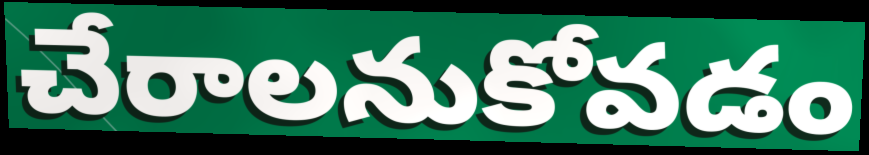
చేరాలనుకోవడం